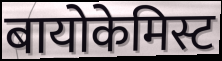
बायोकेमिस्ट